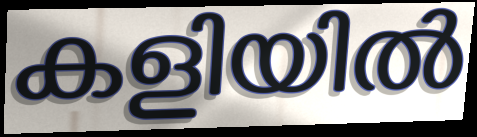
കളിയിൽ